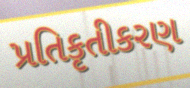
પ્રતિકૃતીકરણ